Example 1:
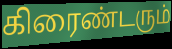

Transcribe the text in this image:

கிரைண்டரும்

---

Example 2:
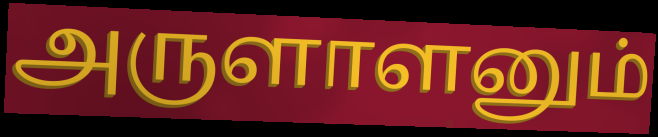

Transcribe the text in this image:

அருளாளனும்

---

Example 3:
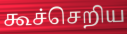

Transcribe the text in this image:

கூச்செறிய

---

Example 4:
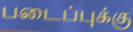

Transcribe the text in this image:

படைப்புக்கு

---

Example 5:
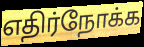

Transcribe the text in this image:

எதிர்நோக்க